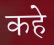
कहे